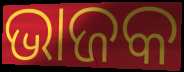
ଭାଜକ